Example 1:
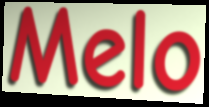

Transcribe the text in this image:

Melo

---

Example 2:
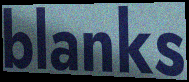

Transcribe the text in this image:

blanks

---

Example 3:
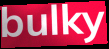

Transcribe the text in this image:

bulky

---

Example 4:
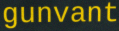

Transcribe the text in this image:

gunvant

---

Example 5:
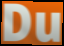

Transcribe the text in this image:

Du